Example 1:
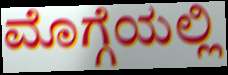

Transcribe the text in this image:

ಮೊಗ್ಗೆಯಲ್ಲಿ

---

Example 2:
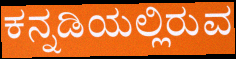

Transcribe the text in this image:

ಕನ್ನಡಿಯಲ್ಲಿರುವ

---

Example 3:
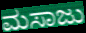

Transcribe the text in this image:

ಮಸಾಜು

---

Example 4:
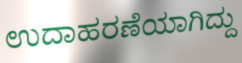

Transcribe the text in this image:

ಉದಾಹರಣೆಯಾಗಿದ್ದು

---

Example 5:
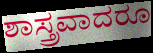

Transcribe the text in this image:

ಶಾಸ್ತ್ರವಾದರೂ